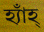
হ্যাঁহ্